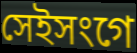
সেইসংগে